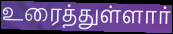
உரைத்துள்ளார்